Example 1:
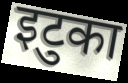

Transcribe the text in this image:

इटुका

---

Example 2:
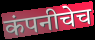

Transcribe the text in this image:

कंपनीचेच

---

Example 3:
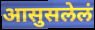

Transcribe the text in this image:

आसुसलेलं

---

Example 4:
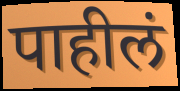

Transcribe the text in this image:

पाहीलं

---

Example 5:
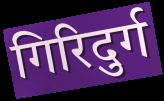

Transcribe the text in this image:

गिरिदुर्ग